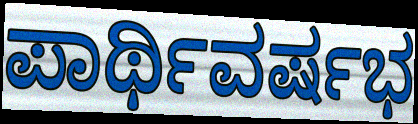
ಪಾರ್ಥಿವರ್ಷಭ